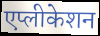
एप्‍लीकेशन